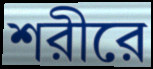
শরীরে